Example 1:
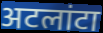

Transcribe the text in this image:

अटलांटा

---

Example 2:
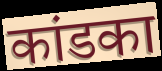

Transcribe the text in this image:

कांडका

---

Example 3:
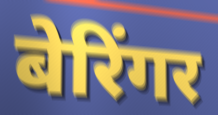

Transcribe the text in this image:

बेरिंगर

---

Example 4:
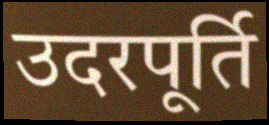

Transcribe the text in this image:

उदरपूर्ति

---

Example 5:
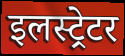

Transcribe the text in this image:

इलस्ट्रेटर